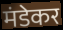
मंडेकर